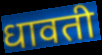
धावती